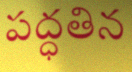
పద్ధతిన